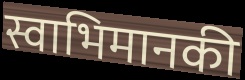
स्वाभिमानकी